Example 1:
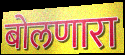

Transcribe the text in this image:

बोलणारा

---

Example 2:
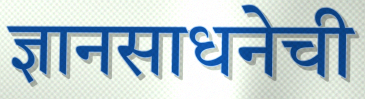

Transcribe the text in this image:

ज्ञानसाधनेची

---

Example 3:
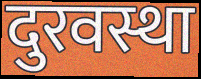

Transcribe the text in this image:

दुरवस्था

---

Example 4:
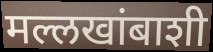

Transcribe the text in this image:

मल्लखांबाशी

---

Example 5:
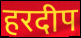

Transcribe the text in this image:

हरदीप